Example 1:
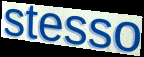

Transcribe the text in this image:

stesso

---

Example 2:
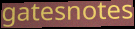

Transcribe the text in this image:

gatesnotes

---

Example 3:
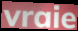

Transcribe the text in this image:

vraie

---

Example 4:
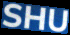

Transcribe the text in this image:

SHU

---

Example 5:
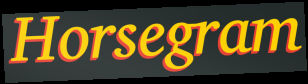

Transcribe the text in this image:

Horsegram